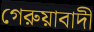
গেরুয়াবাদী